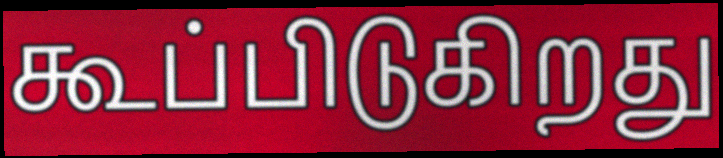
கூப்பிடுகிறது